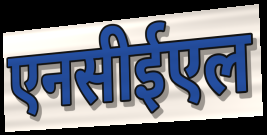
एनसीईएल